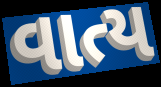
વાત્ય